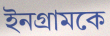
ইনগ্রামকে